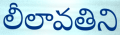
లీలావతిని